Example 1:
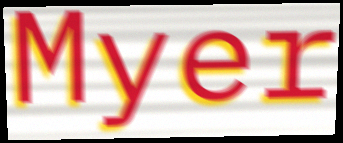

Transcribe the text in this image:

Myer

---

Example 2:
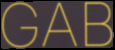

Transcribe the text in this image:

GAB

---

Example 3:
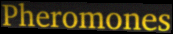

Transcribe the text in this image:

Pheromones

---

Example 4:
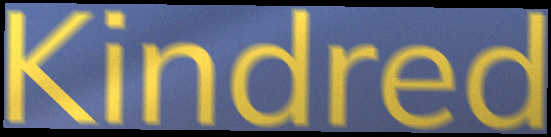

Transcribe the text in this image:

Kindred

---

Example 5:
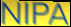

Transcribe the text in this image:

NIPA